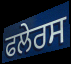
ਫਲੇਰਸ